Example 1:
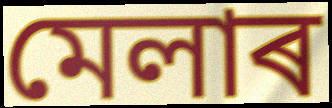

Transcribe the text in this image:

মেলাৰ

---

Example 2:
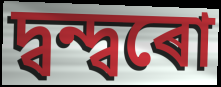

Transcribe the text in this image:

দ্বন্দ্বৰো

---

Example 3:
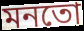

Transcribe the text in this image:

মনতো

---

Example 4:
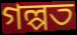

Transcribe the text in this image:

গল্পত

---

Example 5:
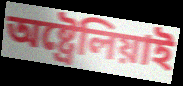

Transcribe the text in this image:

অষ্ট্ৰেলিয়াই